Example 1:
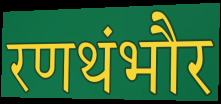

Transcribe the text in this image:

रणथंभौर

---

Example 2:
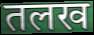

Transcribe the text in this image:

तलख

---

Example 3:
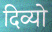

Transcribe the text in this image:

दिव्यो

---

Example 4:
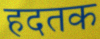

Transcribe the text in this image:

हदतक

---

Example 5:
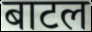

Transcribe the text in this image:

बाटल